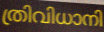
ത്രിവിധാനി